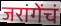
जरांगेंचं